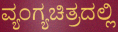
ವ್ಯಂಗ್ಯಚಿತ್ರದಲ್ಲಿ